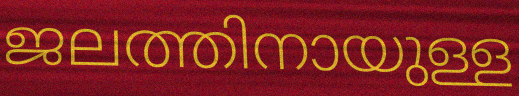
ജലത്തിനായുള്ള